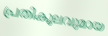
പ്രതികൂലവുമായ